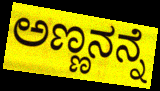
ಅಣ್ಣನನ್ನೆ